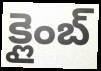
క్లైంబ్